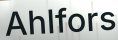
Ahlfors